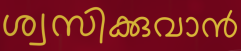
ശ്വസിക്കുവാൻ